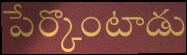
పేర్కొంటాడు